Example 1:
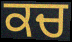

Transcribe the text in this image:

ਕਚ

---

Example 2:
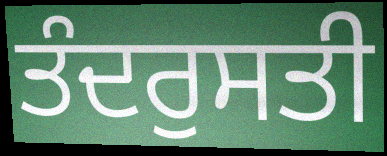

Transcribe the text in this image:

ਤੰਦਰੁਸਤੀ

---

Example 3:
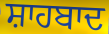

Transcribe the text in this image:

ਸ਼ਾਹਬਾਦ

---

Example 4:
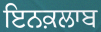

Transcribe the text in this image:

ਇਨਕ਼ਲਾਬ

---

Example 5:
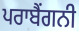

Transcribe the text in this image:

ਪਰਾਬੈਂਗਨੀ